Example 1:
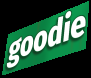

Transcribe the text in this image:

goodie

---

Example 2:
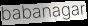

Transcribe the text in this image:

babanagar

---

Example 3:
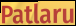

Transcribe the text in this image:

Patlaru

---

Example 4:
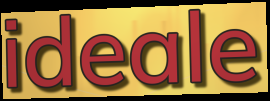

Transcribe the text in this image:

ideale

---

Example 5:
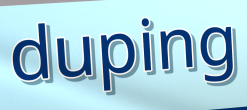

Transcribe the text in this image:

duping